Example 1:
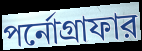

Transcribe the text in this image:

পর্নোগ্রাফার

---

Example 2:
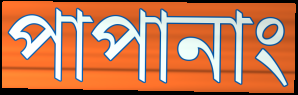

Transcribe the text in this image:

পাপানাং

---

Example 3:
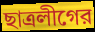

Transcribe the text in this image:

ছাত্রলীগের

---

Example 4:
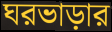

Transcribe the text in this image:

ঘরভাড়ার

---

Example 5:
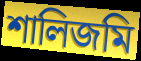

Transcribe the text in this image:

শালিজমি